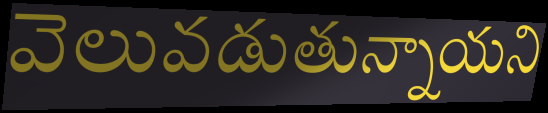
వెలువడుతున్నాయని